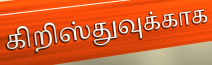
கிறிஸ்துவுக்காக